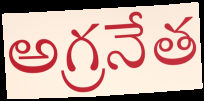
అగ్రనేత